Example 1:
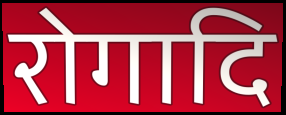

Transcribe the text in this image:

रोगादि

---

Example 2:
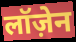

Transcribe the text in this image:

लॉज़ेन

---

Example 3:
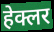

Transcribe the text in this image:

हेक्लर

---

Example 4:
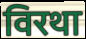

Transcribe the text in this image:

विरथा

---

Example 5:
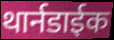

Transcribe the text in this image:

थार्नडाईक